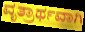
ವೃತ್ರಾರ್ಥವಾಗಿ